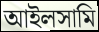
আইলসামি